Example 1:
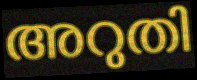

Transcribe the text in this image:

അറുതി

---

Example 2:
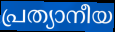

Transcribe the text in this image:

പ്രത്യാനീയ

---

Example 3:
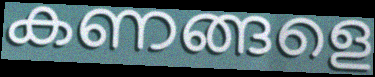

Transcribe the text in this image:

കണങ്ങളെ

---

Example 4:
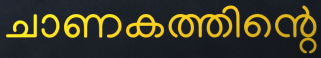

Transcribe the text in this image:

ചാണകത്തിന്റെ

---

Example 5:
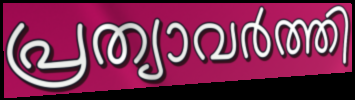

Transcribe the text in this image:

പ്രത്യാവർത്തി